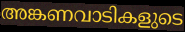
അങ്കണവാടികളുടെ